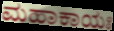
ಮಹಾಕಾಯಃ